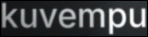
kuvempu